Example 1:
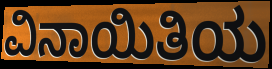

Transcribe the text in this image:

ವಿನಾಯಿತಿಯ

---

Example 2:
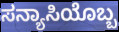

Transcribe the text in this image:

ಸನ್ಯಾಸಿಯೊಬ್ಬ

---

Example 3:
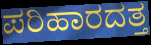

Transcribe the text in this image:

ಪರಿಹಾರದತ್ತ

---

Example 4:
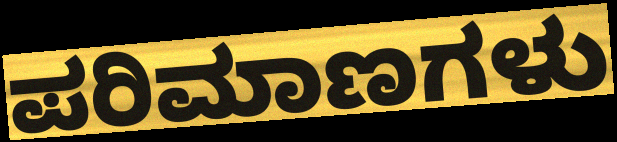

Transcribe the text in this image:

ಪರಿಮಾಣಗಳು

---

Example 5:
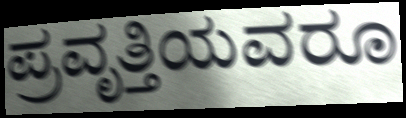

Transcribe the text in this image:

ಪ್ರವೃತ್ತಿಯವರೂ